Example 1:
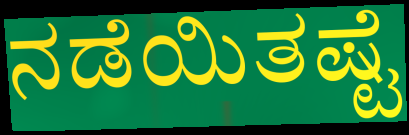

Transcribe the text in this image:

ನಡೆಯಿತಷ್ಟೆ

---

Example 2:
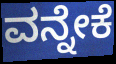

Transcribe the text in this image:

ವನ್ನೇಕೆ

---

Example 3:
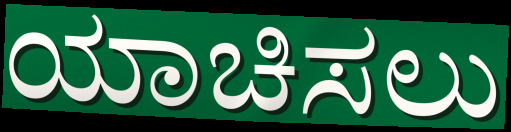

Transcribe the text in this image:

ಯಾಚಿಸಲು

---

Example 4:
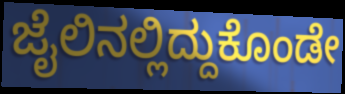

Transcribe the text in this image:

ಜೈಲಿನಲ್ಲಿದ್ದುಕೊಂಡೇ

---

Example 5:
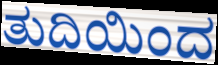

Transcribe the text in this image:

ತುದಿಯಿಂದ